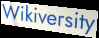
Wikiversity